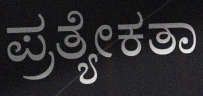
ಪ್ರತ್ಯೇಕತಾ